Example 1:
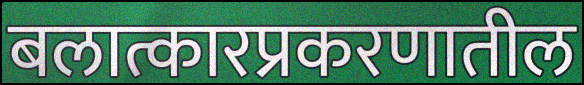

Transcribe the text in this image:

बलात्कारप्रकरणातील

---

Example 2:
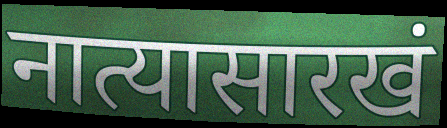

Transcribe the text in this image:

नात्यासारखं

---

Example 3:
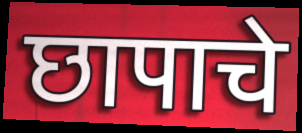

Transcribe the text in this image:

छापाचे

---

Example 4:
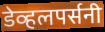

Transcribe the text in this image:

डेव्हलपर्सनी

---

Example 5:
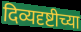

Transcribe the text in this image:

दिव्यदृष्टीच्या